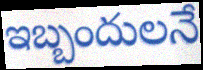
ఇబ్బందులనే